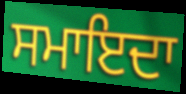
ਸਮਾਇਦਾ